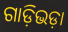
ଗାଡ଼ିଭଡ଼ା